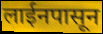
लाईनपासून